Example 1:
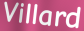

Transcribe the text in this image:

Villard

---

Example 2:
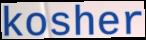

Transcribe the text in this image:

kosher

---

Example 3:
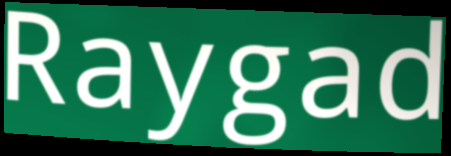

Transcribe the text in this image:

Raygad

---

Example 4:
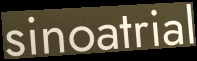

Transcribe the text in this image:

sinoatrial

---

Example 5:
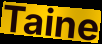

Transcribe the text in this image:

Taine